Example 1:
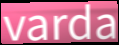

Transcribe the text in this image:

varda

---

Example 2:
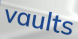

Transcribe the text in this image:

vaults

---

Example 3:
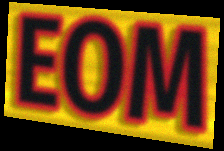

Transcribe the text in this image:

EOM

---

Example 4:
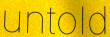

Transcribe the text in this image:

untold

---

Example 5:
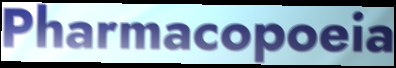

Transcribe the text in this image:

Pharmacopoeia